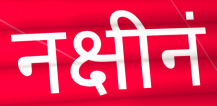
नक्षीनं